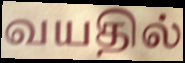
வயதில்